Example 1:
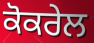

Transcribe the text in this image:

ਕੋਕਰੇਲ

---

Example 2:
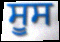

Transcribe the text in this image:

ਸੂਸ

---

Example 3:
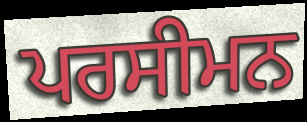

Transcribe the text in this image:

ਪਰਸੀਮਨ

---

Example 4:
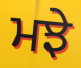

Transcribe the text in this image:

ਮਝੇ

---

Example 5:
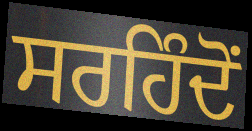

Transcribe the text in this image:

ਸਰਹਿੰਦੋਂ